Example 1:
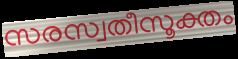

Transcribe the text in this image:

സരസ്വതീസൂക്തം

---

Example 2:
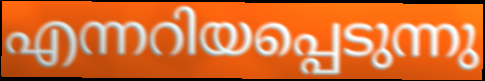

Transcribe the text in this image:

എന്നറിയപ്പെടുന്നു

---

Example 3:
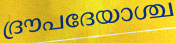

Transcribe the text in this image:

ദ്രൗപദേയാശ്ച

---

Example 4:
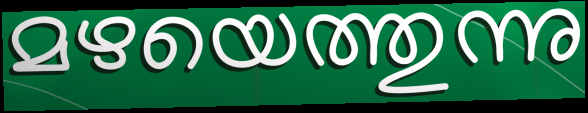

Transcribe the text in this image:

മഴയെത്തുന്നു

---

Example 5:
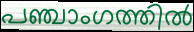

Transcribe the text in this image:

പഞ്ചാംഗത്തിൽ